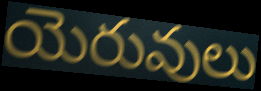
యెరువులు